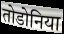
तोडोनिया